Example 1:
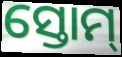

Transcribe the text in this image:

ସ୍ତୋମ୍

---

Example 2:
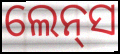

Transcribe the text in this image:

ଲେନ୍‍ସ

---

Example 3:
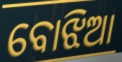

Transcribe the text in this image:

ବୋଝିଆ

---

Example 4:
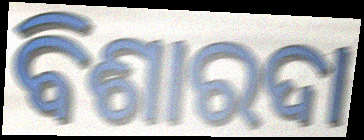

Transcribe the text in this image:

ବିଶାରଦା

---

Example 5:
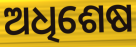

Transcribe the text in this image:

ଅଧିଶେଷ